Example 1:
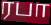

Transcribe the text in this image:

ரபா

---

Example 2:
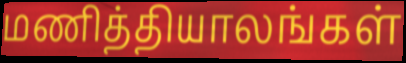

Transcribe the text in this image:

மணித்தியாலங்கள்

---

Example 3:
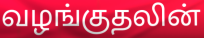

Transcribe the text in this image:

வழங்குதலின்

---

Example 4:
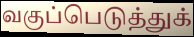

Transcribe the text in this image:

வகுப்பெடுத்துக்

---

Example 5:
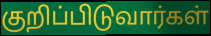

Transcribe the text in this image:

குறிப்பிடுவார்கள்